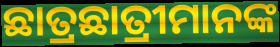
ଛାତ୍ରଛାତ୍ରୀମାନଙ୍କ